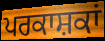
ਪਰਕਾਸ਼ਕਾਂ